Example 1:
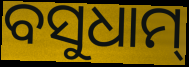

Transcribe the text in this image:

ବସୁଧାମ୍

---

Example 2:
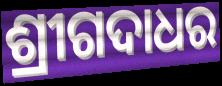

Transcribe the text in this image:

ଶ୍ରୀଗଦାଧର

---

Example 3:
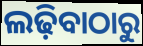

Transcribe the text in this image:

ଲଢ଼ିବାଠାରୁ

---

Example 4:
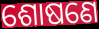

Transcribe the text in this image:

ଶୋଷଣେ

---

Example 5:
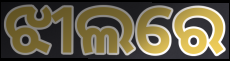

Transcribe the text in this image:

ଝୀଲରେ